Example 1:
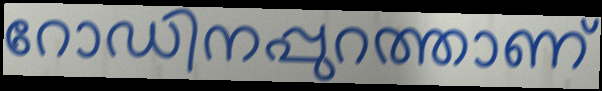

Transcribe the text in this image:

റോഡിനപ്പുറത്താണ്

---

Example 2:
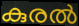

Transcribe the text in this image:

കുരൽ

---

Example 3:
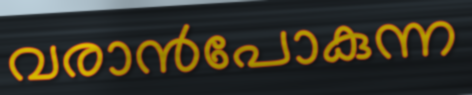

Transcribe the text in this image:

വരാൻപോകുന്ന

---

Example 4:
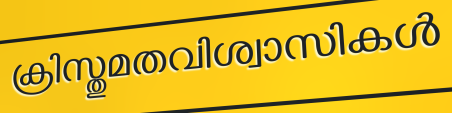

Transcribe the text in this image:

ക്രിസ്തുമതവിശ്വാസികൾ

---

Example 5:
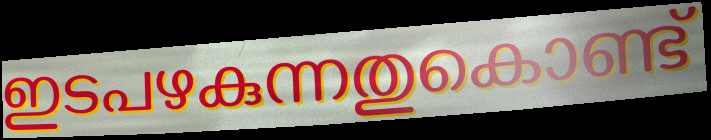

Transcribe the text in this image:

ഇടപഴകുന്നതുകൊണ്ട്